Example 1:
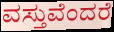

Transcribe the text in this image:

ವಸ್ತುವೆಂದರೆ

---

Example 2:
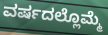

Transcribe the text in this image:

ವರ್ಷದಲ್ಲೊಮ್ಮೆ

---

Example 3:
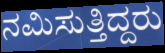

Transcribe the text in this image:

ನಮಿಸುತ್ತಿದ್ದರು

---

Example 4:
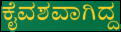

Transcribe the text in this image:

ಕೈವಶವಾಗಿದ್ದ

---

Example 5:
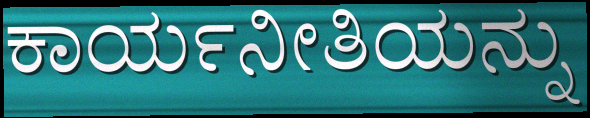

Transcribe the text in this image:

ಕಾರ್ಯನೀತಿಯನ್ನು